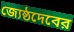
জ্যেষ্ঠদেবের